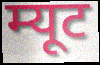
म्यूट